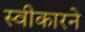
स्वीकारने